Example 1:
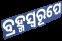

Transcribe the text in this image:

ବ୍ରହ୍ମସ୍ୱରୂପେ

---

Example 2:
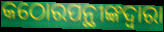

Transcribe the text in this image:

କଠୋରପନ୍ଥୀଙ୍କଦ୍ୱାରା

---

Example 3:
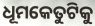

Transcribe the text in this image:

ଧୂମକେତୁଟିକୁ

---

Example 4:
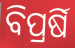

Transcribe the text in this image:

ବିପ୍ରର୍ଷି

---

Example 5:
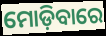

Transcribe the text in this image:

ମୋଡ଼ିବାରେ